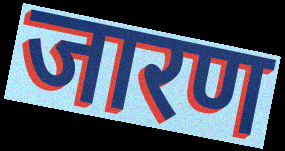
जारण